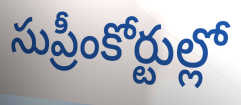
సుప్రీంకోర్టుల్లో